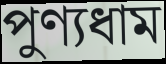
পুণ্যধাম